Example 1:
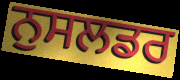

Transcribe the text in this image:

ਨੁਸਲਡਰ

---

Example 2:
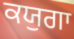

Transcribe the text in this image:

ਕਯੁਗਾ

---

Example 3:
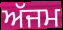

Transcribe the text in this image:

ਅੱਜਮ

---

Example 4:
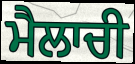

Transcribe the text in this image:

ਮੈਲਾਚੀ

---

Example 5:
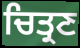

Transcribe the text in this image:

ਚਿਤ੍ਰਣ